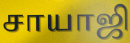
சாயாஜி